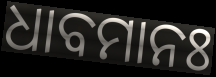
ଧାବମାନଃ